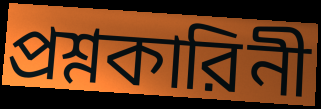
প্রশ্নকারিনী